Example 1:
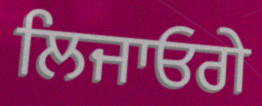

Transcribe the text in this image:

ਲਿਜਾਓਗੇ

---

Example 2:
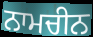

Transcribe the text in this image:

ਨਾਮਚੀਨ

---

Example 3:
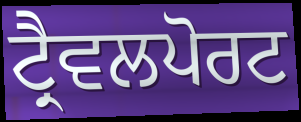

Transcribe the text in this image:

ਟ੍ਰੈਵਲਪੋਰਟ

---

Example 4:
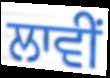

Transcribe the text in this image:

ਲਾਵੀਂ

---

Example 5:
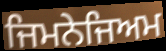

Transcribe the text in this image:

ਜਿਮਨੇਜਿਅਮ